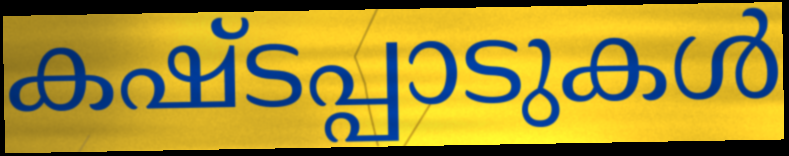
കഷ്ടപ്പാടുകൾ